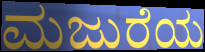
ಮಜುರೆಯ